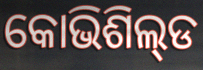
କୋଭିଶିଲ୍‌ଡ